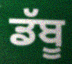
ਡੱਬੂ